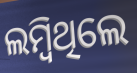
ଲମ୍ବିଥିଲେ